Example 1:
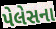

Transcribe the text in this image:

પેલેસના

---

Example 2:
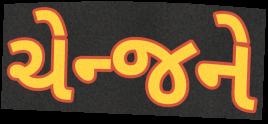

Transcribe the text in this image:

ચેન્જને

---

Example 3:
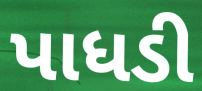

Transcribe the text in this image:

પાધડી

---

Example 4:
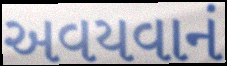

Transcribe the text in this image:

અવયવાનં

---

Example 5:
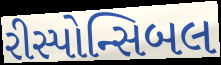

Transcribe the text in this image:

રીસ્પોન્સિબલ